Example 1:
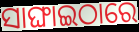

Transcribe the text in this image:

ସାଙ୍ଘାଇଠାରେ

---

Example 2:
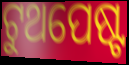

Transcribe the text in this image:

ଟୁଥପେଷ୍ଟ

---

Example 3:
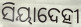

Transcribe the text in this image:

ସିୟାଦେହୀ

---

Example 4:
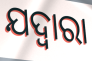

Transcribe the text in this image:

ଯଦ୍ୱାରା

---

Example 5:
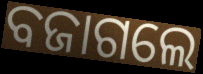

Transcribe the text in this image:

ବଜାଗଲେ